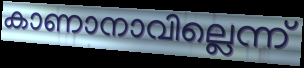
കാണാനാവില്ലെന്ന്